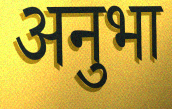
अनुभा